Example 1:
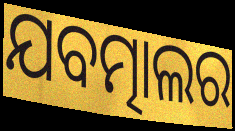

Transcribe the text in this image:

ଯବତ୍ମାଲର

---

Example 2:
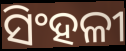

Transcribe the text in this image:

ସିଂହଳୀ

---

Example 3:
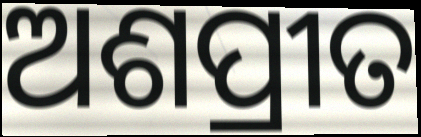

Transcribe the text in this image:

ଅଶପ୍ରୀତ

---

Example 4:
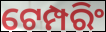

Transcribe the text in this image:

ଟେମ୍ପରିଂ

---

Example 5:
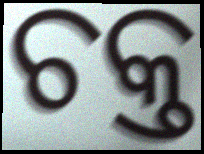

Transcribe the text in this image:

ଚକ୍ତ